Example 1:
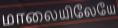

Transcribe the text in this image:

மாலையிலேயே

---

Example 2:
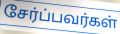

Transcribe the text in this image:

சேர்ப்பவர்கள்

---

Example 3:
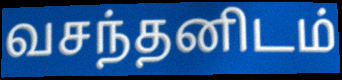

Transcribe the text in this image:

வசந்தனிடம்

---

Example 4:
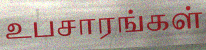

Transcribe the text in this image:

உபசாரங்கள்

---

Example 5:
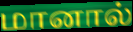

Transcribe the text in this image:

மானால்